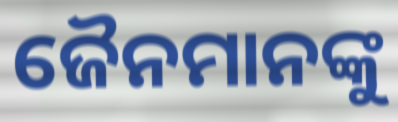
ଜୈନମାନଙ୍କୁ